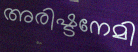
അരിഷ്ടനേമി